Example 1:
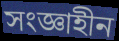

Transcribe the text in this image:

সংজ্ঞাহীন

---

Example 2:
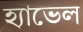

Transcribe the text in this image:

হ্যাভেল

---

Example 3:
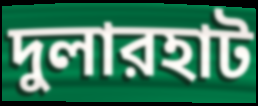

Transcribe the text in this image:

দুলারহাট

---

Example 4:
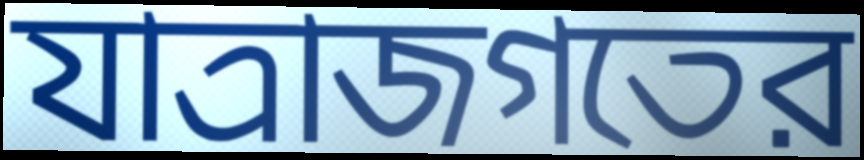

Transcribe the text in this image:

যাত্রাজগতের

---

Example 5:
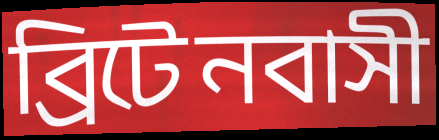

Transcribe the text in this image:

ব্রিটেনবাসী